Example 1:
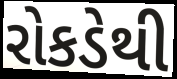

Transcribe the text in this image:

રોકડેથી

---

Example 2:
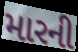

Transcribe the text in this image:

મારની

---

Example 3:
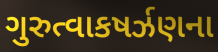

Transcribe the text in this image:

ગુરુત્વાકષર્ઝણના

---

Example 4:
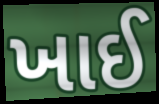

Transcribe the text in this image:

ખાઈ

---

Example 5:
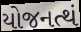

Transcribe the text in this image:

યોજનત્થં